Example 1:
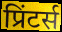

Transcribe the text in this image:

प्रिंटर्स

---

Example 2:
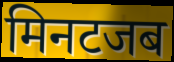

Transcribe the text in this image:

मिनटजब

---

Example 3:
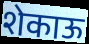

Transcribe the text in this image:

शेकाऊ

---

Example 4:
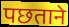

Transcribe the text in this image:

पछताने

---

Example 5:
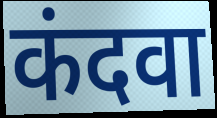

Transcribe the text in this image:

कंदवा